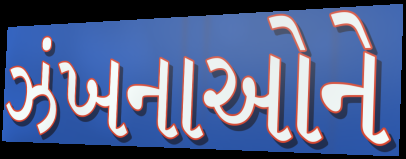
ઝંખનાઓને